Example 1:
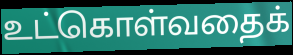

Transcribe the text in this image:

உட்கொள்வதைக்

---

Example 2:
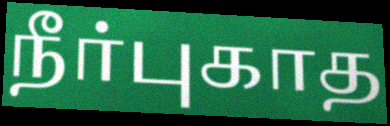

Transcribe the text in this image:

நீர்புகாத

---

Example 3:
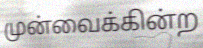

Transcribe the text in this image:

முன்வைக்கின்ற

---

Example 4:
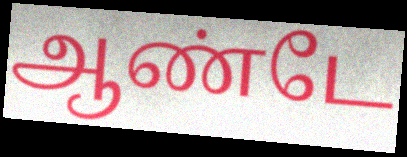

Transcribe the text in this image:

ஆண்டே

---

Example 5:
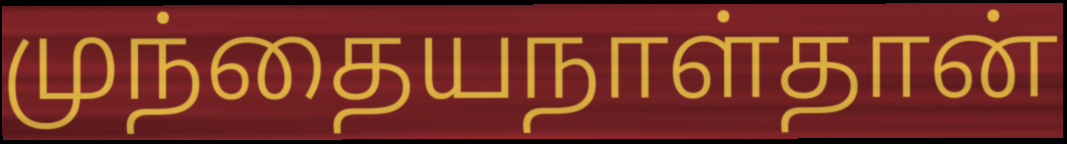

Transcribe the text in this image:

முந்தையநாள்தான்